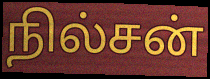
நில்சன்